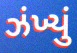
ઝંખ્યું